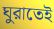
ঘুরাতেই